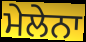
ਮੇਲੇਨਾ